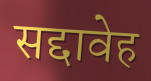
सद्दावेह